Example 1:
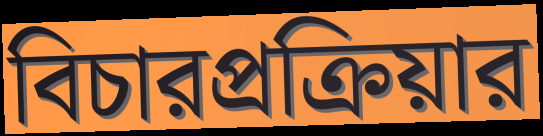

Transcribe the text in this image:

বিচারপ্রক্রিয়ার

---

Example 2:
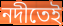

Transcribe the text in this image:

নদীতেই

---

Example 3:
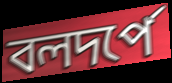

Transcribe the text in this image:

বলদর্পে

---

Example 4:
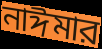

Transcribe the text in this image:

নাঈমার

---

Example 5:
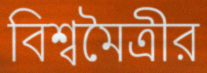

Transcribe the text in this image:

বিশ্বমৈত্রীর